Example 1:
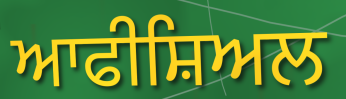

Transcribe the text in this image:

ਆਫੀਸ਼ਿਅਲ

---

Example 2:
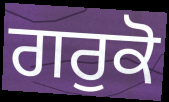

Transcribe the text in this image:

ਗਰੁਕੋ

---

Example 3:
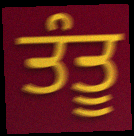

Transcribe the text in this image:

ਤੰਤੂ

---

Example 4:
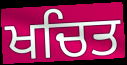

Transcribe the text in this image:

ਖਚਿਤ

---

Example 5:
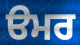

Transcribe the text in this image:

ੳਮਰ